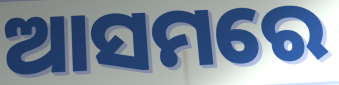
ଆସମରେ